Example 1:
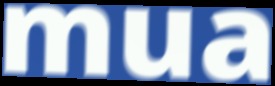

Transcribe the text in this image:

mua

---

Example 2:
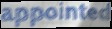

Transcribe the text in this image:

appointed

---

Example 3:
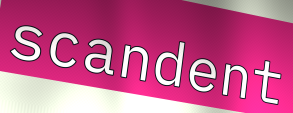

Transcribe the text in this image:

scandent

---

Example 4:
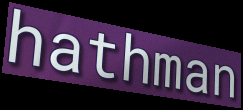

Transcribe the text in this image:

hathman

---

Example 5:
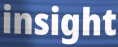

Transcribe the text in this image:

insight